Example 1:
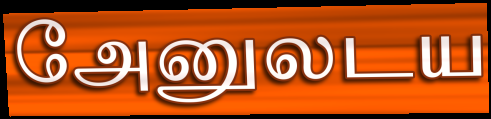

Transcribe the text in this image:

அேனுலடய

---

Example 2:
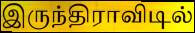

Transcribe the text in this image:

இருந்திராவிடில்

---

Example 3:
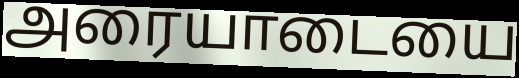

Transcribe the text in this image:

அரையாடையை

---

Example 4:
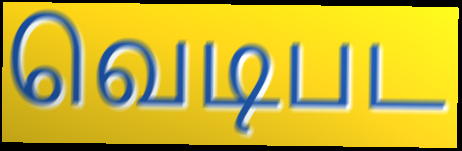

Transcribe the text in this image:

வெடிபட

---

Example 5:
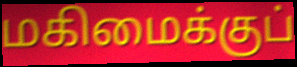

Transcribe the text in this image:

மகிமைக்குப்